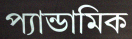
প্যান্ডামিক